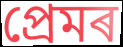
প্ৰেমৰ